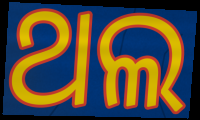
ଥଲ